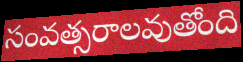
సంవత్సరాలవుతోంది